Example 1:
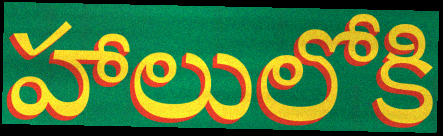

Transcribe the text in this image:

హాలులోకి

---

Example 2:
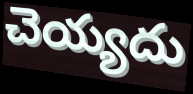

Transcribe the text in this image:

చెయ్యదు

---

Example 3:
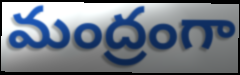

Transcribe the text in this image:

మంద్రంగా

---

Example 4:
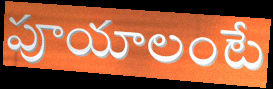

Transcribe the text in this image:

పూయాలంటే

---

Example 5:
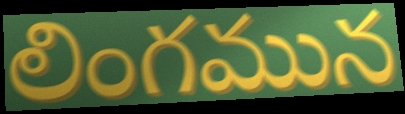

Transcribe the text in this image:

లింగమున